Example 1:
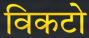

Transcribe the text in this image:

विकटो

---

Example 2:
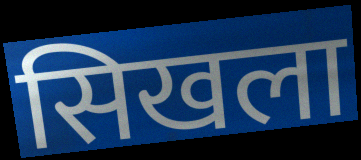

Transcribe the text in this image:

सिखला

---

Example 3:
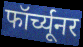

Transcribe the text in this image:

फॉर्च्यूनर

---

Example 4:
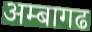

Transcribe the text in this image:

अम्बागढ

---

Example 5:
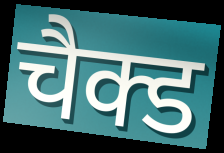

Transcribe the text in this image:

चैक्ड